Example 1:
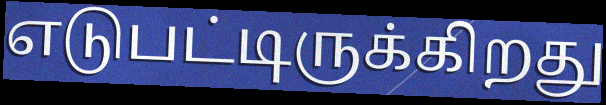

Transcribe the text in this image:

எடுபட்டிருக்கிறது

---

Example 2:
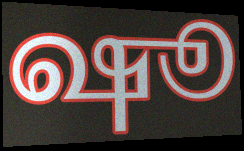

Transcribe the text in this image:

ஷூ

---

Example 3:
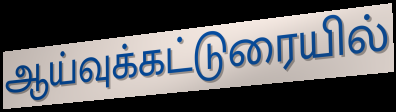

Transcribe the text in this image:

ஆய்வுக்கட்டுரையில்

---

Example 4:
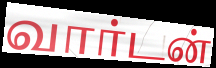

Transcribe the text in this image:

வார்டன்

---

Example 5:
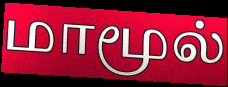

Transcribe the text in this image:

மாமூல்